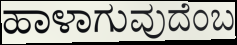
ಹಾಳಾಗುವುದೆಂಬ